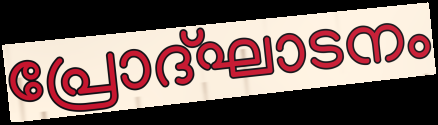
പ്രോദ്ഘാടനം